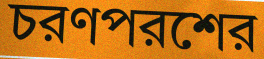
চরণপরশের